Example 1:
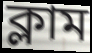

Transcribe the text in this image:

ক্লাম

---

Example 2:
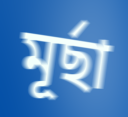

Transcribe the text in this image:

মূর্ছা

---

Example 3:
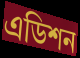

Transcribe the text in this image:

এডিশন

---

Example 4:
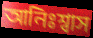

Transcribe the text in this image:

আনিঃশ্বাস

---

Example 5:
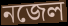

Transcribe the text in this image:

নজেল